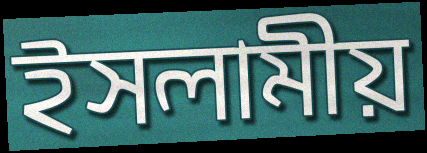
ইসলামীয়